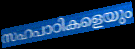
സഹപാഠികളെയും